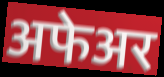
अफेअर